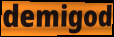
demigod